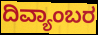
ದಿವ್ಯಾಂಬರ